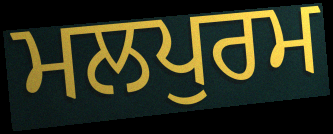
ਮਲਪੁਰਮ